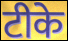
टीके